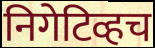
निगेटिव्हच